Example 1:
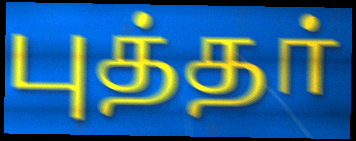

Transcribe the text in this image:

புத்தர்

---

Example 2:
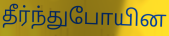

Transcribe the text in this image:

தீர்ந்துபோயின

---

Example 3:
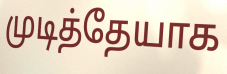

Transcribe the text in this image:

முடித்தேயாக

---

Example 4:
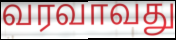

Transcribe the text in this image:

வரவாவது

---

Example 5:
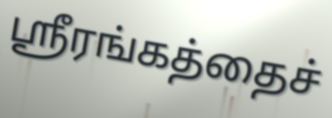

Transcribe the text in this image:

ஸ்ரீரங்கத்தைச்